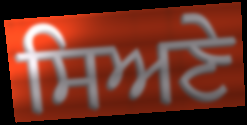
ਸਿਅਣੇ